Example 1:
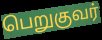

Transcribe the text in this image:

பெறுகுவர்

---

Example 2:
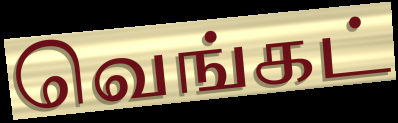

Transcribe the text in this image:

வெங்கட்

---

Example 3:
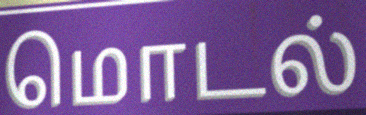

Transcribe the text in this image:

மொடல்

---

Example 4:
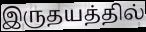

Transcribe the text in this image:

இருதயத்தில்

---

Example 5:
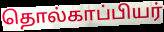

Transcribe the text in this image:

தொல்காப்பியர்